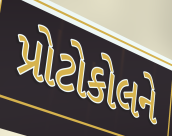
પ્રોટોકોલને